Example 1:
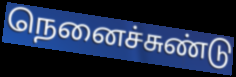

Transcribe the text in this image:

நெனைச்சுண்டு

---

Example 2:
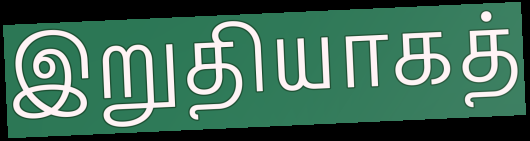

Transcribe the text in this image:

இறுதியாகத்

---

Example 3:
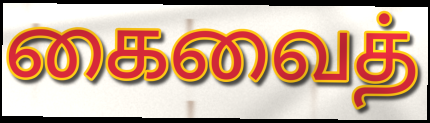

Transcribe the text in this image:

கைவைத்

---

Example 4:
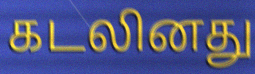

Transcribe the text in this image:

கடலினது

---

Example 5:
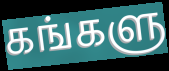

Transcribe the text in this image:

கங்களு